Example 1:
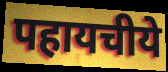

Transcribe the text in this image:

पहायचीये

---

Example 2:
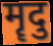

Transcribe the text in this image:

मॄदु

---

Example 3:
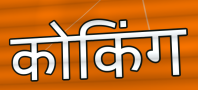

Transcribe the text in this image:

कोकिंग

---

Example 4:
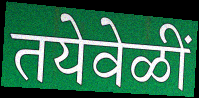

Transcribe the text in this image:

तयेवेळीं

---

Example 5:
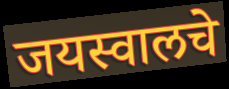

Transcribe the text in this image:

जयस्वालचे